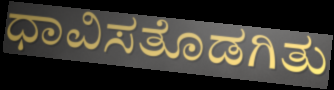
ಧಾವಿಸತೊಡಗಿತು